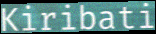
Kiribati